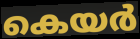
കെയർ